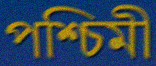
পশ্চিমী